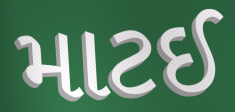
માટઈ